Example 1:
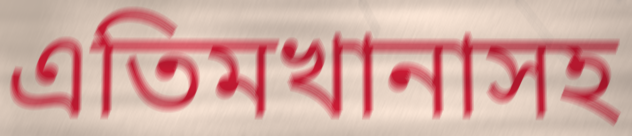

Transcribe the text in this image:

এতিমখানাসহ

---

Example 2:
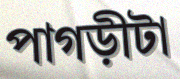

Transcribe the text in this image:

পাগড়ীটা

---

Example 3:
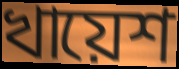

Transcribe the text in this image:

খায়েশ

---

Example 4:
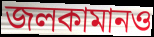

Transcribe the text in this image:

জলকামানও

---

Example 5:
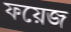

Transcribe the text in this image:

ফয়েজ